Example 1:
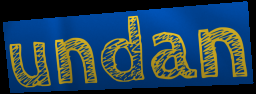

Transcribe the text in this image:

undan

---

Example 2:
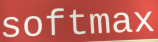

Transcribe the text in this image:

softmax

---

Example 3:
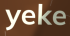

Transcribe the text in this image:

yeke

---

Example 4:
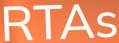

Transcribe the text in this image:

RTAs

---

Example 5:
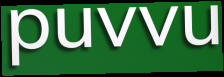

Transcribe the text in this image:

puvvu